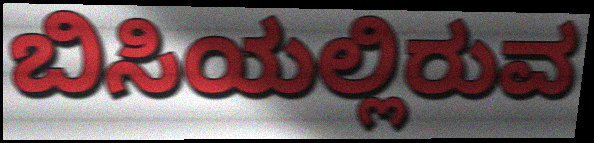
ಬಿಸಿಯಲ್ಲಿರುವ